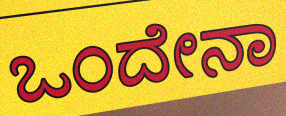
ಒಂದೇನಾ